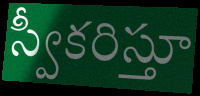
స్వీకరిస్తూ